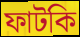
ফাটকি